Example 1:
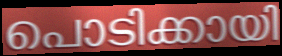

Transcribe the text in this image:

പൊടിക്കായി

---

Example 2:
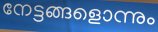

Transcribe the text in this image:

നേട്ടങ്ങളൊന്നും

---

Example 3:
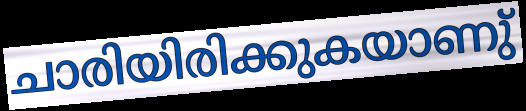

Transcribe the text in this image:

ചാരിയിരിക്കുകയാണു്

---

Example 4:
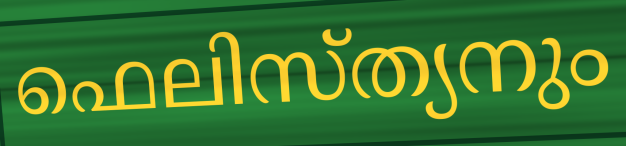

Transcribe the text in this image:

ഫെലിസ്ത്യനും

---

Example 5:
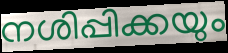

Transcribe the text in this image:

നശിപ്പിക്കയും